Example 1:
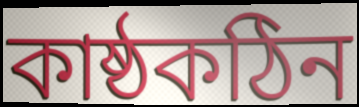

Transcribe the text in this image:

কাষ্ঠকঠিন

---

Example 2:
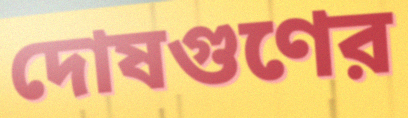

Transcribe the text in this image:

দোষগুণের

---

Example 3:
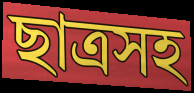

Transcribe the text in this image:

ছাত্রসহ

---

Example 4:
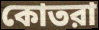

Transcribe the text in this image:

কোতরা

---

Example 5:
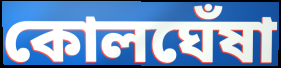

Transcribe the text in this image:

কোলঘেঁষা